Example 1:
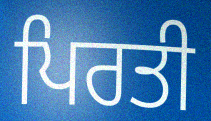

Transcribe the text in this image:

ਪਿਰਤੀ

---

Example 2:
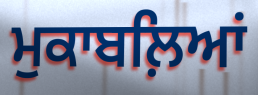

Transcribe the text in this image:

ਮੁਕਾਬਲ਼ਿਆਂ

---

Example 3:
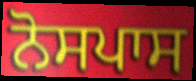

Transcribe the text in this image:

ਨੋਸਪਾਸ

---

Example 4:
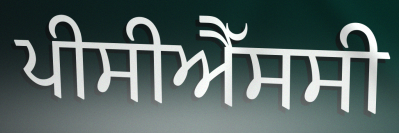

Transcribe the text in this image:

ਪੀਸੀਐੱਸਸੀ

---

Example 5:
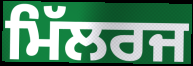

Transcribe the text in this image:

ਮਿੱਲਰਜ